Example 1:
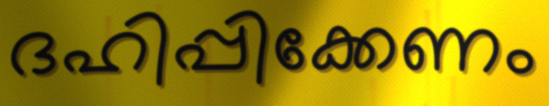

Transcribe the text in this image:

ദഹിപ്പിക്കേണം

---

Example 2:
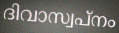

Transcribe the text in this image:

ദിവാസ്വപ്നം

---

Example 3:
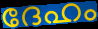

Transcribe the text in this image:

ദേഹം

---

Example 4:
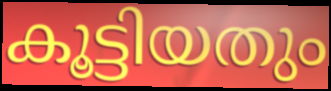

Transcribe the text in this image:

കൂട്ടിയതും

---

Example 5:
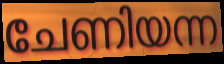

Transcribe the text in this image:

ചേണിയന്ന